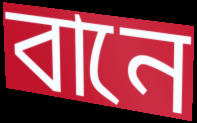
বানে